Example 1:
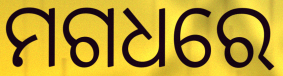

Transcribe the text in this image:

ମଗଧରେ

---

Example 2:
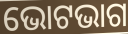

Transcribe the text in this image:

ଭୋଟଭାଗ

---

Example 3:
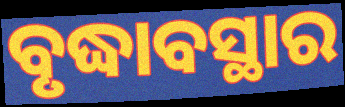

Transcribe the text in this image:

ବୃଦ୍ଧାବସ୍ଥାର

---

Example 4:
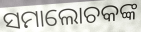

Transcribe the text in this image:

ସମାଲୋଚକଙ୍କ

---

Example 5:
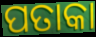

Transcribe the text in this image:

ପତାକା